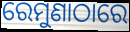
ରେମୁଣାଠାରେ